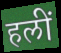
हलीं